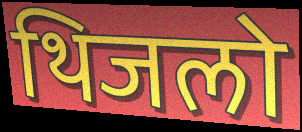
थिजलो